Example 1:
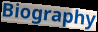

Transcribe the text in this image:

Biography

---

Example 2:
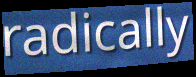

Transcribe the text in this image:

radically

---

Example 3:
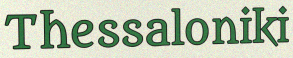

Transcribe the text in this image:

Thessaloniki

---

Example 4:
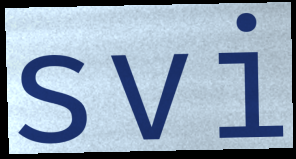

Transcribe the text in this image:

svi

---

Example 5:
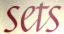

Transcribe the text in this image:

sets